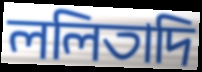
ললিতাদি